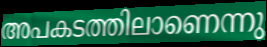
അപകടത്തിലാണെന്നു